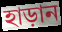
হাড়ান